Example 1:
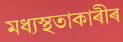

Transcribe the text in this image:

মধ্যস্থতাকাৰীৰ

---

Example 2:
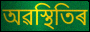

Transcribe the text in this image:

অৱস্থিতিৰ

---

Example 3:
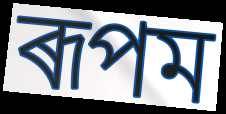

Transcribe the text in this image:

ৰূপম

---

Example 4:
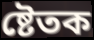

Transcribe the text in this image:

ষ্টেতক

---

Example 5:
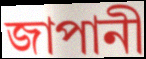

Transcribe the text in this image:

জাপানী